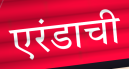
एरंडाची